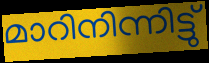
മാറിനിന്നിട്ടു്